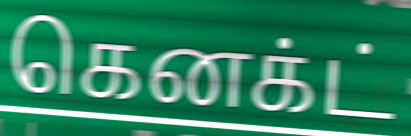
கெனக்ட்